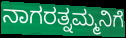
ನಾಗರತ್ನಮ್ಮನಿಗೆ